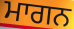
ਮਾਗਨ